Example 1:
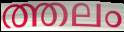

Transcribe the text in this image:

ത്തലം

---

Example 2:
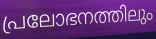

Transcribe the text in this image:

പ്രലോഭനത്തിലും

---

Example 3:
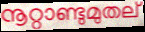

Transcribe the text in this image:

നൂറ്റാണ്ടുമുതല്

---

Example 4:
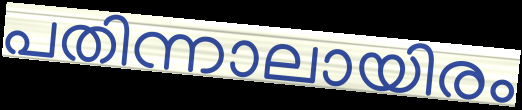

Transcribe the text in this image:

പതിന്നാലായിരം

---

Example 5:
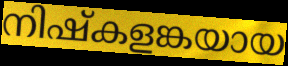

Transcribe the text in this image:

നിഷ്കളങ്കയായ